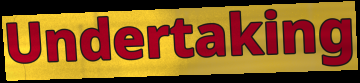
Undertaking